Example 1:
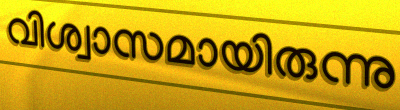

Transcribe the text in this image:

വിശ്വാസമായിരുന്നു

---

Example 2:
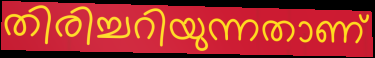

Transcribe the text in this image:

തിരിച്ചറിയുന്നതാണ്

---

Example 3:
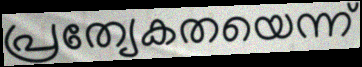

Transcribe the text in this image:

പ്രത്യേകതയെന്ന്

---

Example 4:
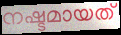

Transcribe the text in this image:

നഷ്ടമായത്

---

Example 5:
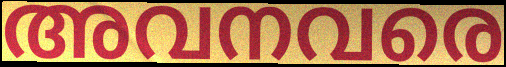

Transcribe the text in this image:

അവനവരെ